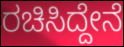
ರಚಿಸಿದ್ದೇನೆ